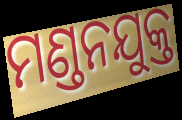
ମଣ୍ଡନଯୁକ୍ତ